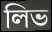
লিভ